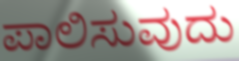
ಪಾಲಿಸುವುದು